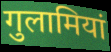
गुलामियां